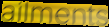
ailments